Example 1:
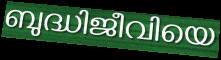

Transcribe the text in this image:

ബുദ്ധിജീവിയെ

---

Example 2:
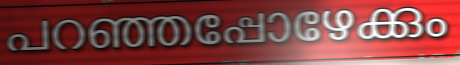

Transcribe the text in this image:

പറഞ്ഞപ്പോഴേക്കും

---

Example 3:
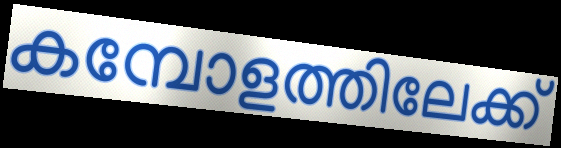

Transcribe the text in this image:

കമ്പോളത്തിലേക്ക്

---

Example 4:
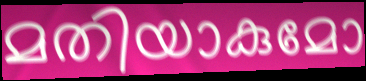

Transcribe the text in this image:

മതിയാകുമോ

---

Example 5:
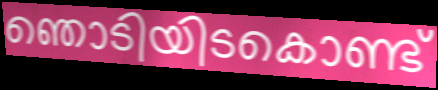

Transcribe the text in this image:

ഞൊടിയിടകൊണ്ട്